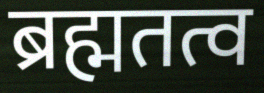
ब्रह्मतत्व